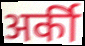
अर्की